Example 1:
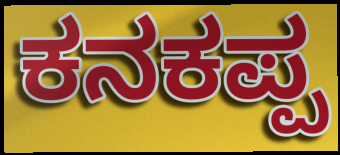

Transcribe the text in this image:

ಕನಕಪ್ಪ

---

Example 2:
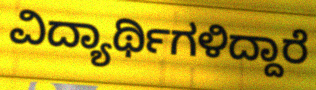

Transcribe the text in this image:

ವಿದ್ಯಾರ್ಥಿಗಳಿದ್ದಾರೆ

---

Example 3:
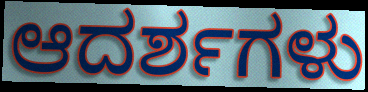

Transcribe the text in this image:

ಆದರ್ಶಗಳು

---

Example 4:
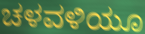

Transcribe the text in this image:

ಚಳವಳಿಯೂ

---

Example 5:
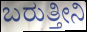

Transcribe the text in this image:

ಬರುತ್ತೀನಿ